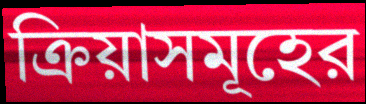
ক্রিয়াসমূহের